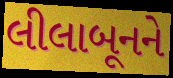
લીલાબૂનને